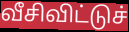
வீசிவிட்டுச்